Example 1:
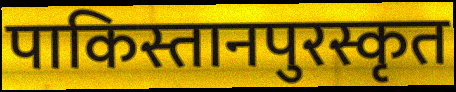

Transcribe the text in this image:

पाकिस्तानपुरस्कृत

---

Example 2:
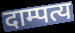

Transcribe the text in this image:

दाम्पत्य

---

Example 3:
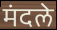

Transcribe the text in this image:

मंदले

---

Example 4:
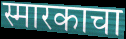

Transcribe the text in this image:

स्मारकाचा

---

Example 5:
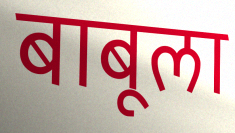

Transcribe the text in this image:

बाबूला